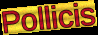
Pollicis